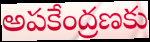
అపకేంద్రణకు